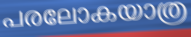
പരലോകയാത്ര